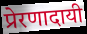
प्रेरणादायी